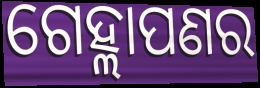
ଗେହ୍ଲାପଣର